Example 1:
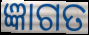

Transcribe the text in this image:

ଜ୍ଞାଗତ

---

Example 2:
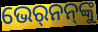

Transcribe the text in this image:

ଭେର୍‍ନନ୍‌ଙ୍କୁ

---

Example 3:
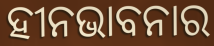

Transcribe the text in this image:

ହୀନଭାବନାର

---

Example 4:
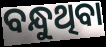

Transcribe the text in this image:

ବନ୍ଧୁଥିବା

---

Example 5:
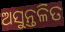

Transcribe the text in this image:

ଅସୁନ୍ତଳିତ